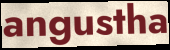
angustha